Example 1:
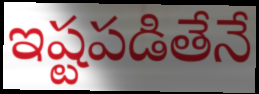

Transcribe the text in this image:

ఇష్టపడితేనే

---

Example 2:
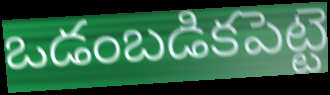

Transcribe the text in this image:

ఒడంబడికపెట్టె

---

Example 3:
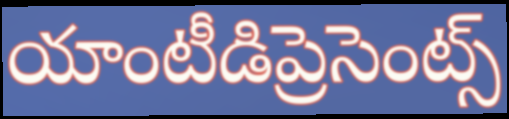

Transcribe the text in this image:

యాంటీడిప్రెసెంట్స్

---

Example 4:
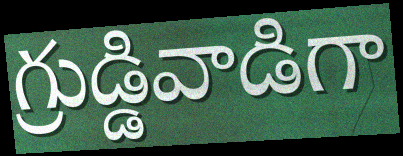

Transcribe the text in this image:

గ్రుడ్డివాడిగా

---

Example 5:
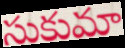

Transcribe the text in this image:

సుకుమా